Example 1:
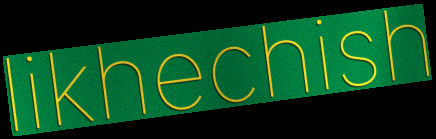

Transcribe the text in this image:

likhechish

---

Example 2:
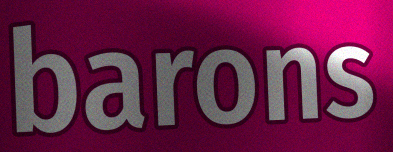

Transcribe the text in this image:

barons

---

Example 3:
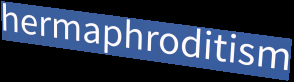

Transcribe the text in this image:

hermaphroditism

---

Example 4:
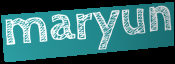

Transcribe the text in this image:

maryun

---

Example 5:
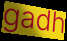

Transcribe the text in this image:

gadh